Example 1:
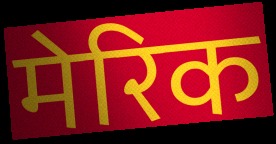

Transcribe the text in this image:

मेरिक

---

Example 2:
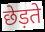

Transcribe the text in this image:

छेड़ते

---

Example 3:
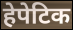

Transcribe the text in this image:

हेपेटिक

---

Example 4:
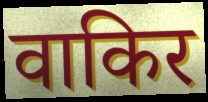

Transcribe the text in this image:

वाकिर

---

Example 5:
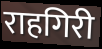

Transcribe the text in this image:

राहगिरी